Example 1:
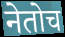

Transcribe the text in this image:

नेतोच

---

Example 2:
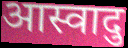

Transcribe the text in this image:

आस्वादु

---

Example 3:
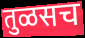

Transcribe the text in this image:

तुळसच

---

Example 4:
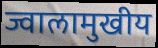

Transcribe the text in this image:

ज्वालामुखीय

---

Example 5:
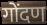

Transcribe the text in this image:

गोंदण